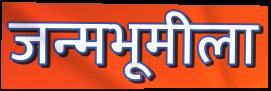
जन्मभूमीला